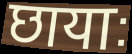
छायाः